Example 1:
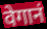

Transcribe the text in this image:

वेगानं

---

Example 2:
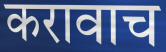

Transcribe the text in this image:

करावाच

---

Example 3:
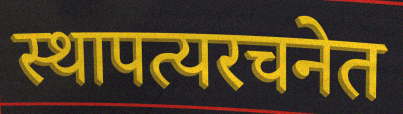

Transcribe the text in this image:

स्थापत्यरचनेत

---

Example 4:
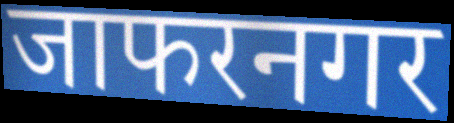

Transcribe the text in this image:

जाफरनगर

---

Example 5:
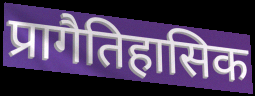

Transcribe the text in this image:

प्रागैतिहासिक